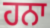
ਹਨਾ